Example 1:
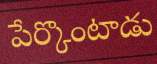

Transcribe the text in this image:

పేర్కొంటాడు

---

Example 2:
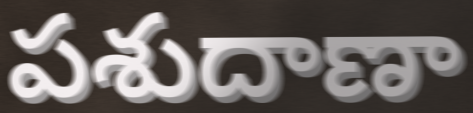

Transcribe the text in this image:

పశుదాణా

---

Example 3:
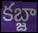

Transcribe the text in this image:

కబ్జా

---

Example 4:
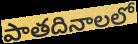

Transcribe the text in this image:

పాతదినాలలో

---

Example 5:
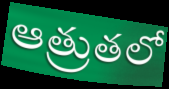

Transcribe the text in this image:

ఆత్రుతలో